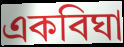
একবিঘা